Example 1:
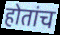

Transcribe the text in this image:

होतांच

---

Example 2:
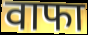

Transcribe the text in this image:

वाफा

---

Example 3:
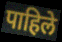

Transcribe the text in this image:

पाहिले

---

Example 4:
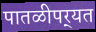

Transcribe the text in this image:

पातळीपर्यत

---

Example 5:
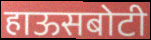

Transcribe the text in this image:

हाऊसबोटी